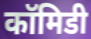
कॉमिडी